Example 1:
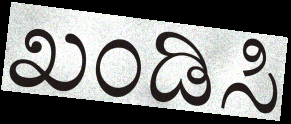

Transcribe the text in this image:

ಖಂಡಿಸಿ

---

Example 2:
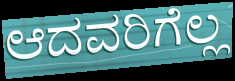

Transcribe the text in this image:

ಆದವರಿಗೆಲ್ಲ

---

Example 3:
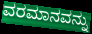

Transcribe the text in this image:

ವರಮಾನವನ್ನು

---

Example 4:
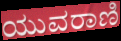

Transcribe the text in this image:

ಯುವರಾಣಿ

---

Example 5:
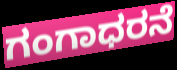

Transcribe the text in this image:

ಗಂಗಾಧರನೆ